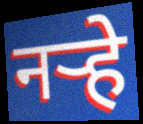
नऱ्हे